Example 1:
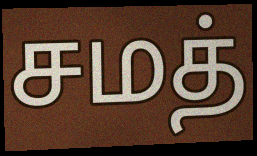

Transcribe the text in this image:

சமத்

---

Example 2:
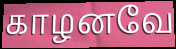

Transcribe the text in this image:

காழனவே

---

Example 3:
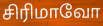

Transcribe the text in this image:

சிரிமாவோ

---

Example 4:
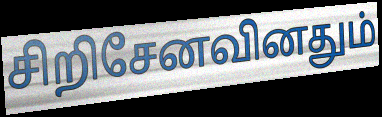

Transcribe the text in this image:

சிறிசேனவினதும்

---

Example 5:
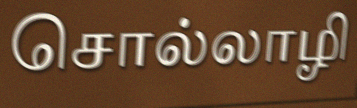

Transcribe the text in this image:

சொல்லாழி